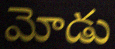
మోడు